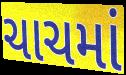
ચાચમાં